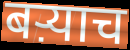
बऱ्‍याच